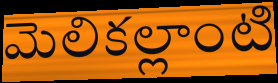
మెలికల్లాంటి